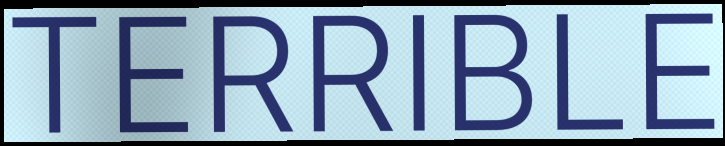
TERRIBLE